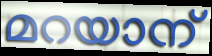
മറയാന്